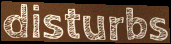
disturbs